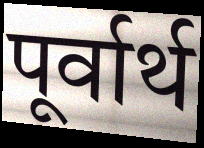
पूर्वार्थ